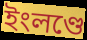
ইংলণ্ডে